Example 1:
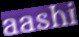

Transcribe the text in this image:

aashi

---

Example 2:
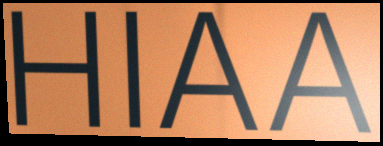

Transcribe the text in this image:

HIAA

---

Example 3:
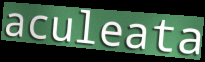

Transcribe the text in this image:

aculeata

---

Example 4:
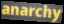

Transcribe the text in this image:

anarchy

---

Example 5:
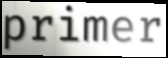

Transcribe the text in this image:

primer